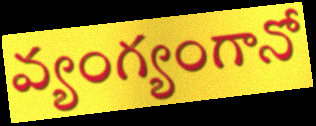
వ్యంగ్యంగానో